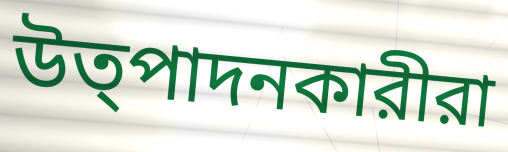
উত্পাদনকারীরা